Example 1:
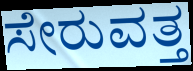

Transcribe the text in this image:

ಸೇರುವತ್ತ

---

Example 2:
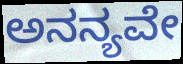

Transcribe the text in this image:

ಅನನ್ಯವೇ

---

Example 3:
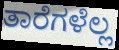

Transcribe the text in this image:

ತಾರೆಗಳೆಲ್ಲ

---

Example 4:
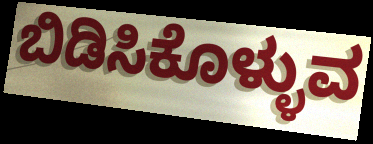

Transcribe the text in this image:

ಬಿಡಿಸಿಕೊಳ್ಳುವ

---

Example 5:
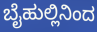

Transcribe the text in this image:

ಬೈಹುಲ್ಲಿನಿಂದ